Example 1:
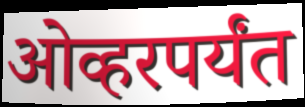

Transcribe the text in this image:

ओव्हरपर्यंत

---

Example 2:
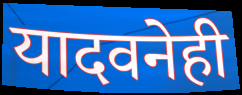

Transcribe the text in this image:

यादवनेही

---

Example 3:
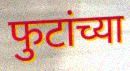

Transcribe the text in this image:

फुटांच्या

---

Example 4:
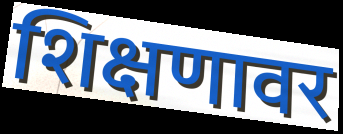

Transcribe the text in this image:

शिक्षणावर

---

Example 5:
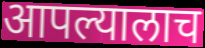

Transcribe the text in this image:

आपल्यालाच